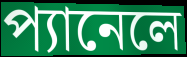
প্যানেলে